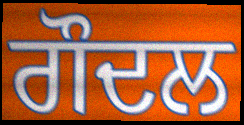
ਗੌਦਲ